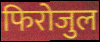
फिरोजुल